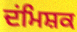
ਦਂਮਿਸ਼ਕ